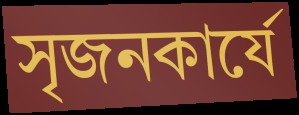
সৃজনকার্যে